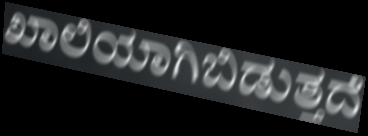
ಖಾಲಿಯಾಗಿಬಿಡುತ್ತದೆ